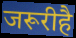
जरूरीहै